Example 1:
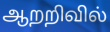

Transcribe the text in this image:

ஆறறிவில்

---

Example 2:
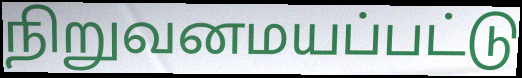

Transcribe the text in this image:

நிறுவனமயப்பட்டு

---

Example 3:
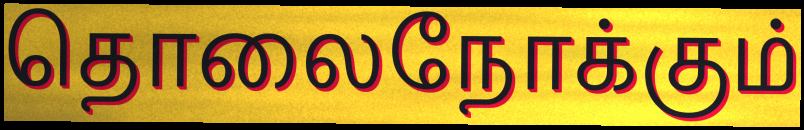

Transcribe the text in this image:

தொலைநோக்கும்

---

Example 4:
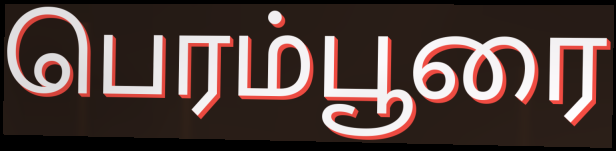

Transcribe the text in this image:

பெரம்பூரை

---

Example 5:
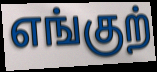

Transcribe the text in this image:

எங்குற்